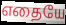
எதையே